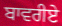
ਬਾਵਰੀਏ